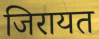
जिरायत